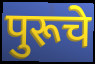
पुरूचे